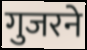
गुजरने